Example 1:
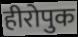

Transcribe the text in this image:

हीरोपुक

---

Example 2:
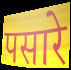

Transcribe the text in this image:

पसारे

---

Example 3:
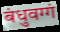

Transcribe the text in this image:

बंधुवग्गं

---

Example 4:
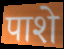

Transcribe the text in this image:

पाशे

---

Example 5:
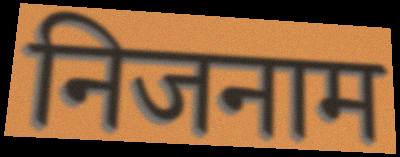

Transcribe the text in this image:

निजनाम